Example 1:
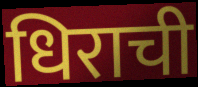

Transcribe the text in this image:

धिराची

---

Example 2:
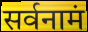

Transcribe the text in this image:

सर्वनामं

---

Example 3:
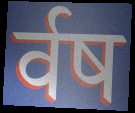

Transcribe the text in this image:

र्वष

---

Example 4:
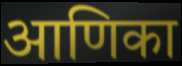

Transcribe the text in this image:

आणिका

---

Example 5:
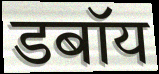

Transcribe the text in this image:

डबॉय